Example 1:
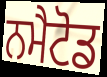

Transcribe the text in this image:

ਨਮੈਟੋਡ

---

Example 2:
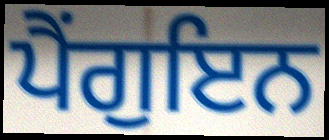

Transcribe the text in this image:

ਪੈਂਗੁਇਨ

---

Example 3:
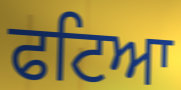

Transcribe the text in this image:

ਫਟਿਆ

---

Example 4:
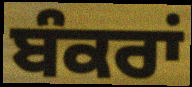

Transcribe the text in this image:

ਬੰਕਰਾਂ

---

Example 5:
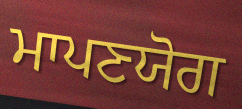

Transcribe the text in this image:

ਮਾਪਣਯੋਗ